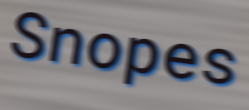
Snopes